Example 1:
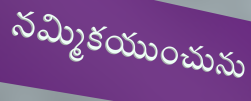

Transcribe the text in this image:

నమ్మికయుంచును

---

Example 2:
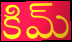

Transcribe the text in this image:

కిమ్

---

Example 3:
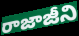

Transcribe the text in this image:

రాజాజీని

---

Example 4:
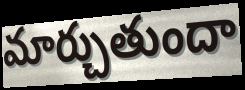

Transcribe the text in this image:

మార్చుతుందా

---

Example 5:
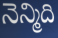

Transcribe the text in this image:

నెన్మిది